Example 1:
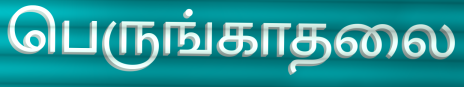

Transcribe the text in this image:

பெருங்காதலை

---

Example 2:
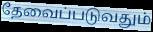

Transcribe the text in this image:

தேவைப்படுவதும்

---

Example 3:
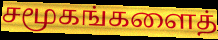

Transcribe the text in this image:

சமூகங்களைத்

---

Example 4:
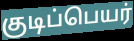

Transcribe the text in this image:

குடிப்பெயர்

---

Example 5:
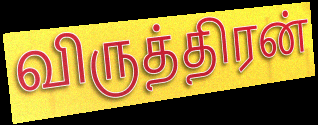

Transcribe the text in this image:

விருத்திரன்